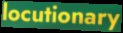
locutionary